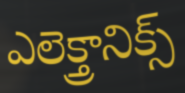
ఎలెక్త్రానిక్స్